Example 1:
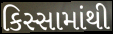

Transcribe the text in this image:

કિસ્સામાંથી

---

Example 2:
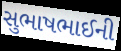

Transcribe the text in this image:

સુભાષભાઈની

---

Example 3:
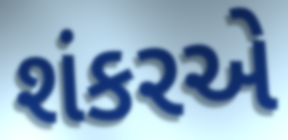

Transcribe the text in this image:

શંકરએ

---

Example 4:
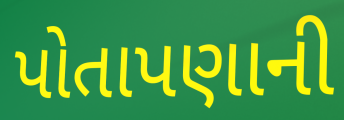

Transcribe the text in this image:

પોતાપણાની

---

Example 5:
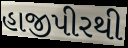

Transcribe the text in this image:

હાજીપીરથી